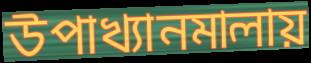
উপাখ্যানমালায়